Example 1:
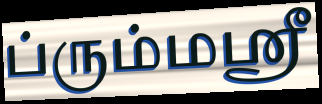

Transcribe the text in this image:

ப்ரும்மஸ்ரீ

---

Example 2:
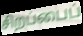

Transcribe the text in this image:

சிறப்பைப்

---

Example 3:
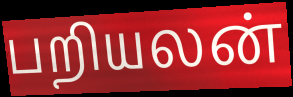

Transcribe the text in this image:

பறியலன்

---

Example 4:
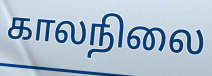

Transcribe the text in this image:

காலநிலை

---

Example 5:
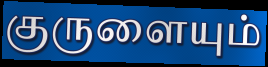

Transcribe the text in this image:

குருளையும்